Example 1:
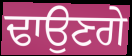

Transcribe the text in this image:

ਢਾਉਣਗੇ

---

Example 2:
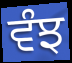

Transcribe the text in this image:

ਵੰਝ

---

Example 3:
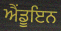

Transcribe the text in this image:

ਐਂਡੂਇਨ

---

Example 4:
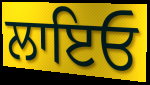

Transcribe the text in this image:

ਲਾਇਓ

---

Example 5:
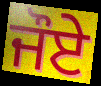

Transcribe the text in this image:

ਜੌਏ